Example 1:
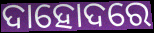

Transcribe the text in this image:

ଦାହୋଦରେ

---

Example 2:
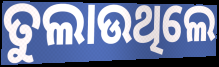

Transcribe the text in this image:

ତୁଲାଉଥିଲେ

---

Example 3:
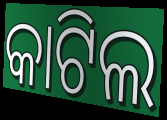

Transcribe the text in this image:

କାଟିଲ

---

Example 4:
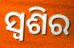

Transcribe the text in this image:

ସ୍ଵଶିର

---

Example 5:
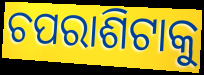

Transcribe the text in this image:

ଚପରାଶିଟାକୁ